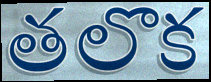
తలొక